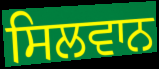
ਸਿਲਵਾਨ